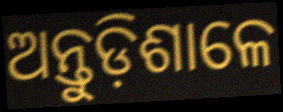
ଅନ୍ତୁଡ଼ିଶାଳେ